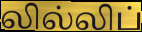
லில்லிப்